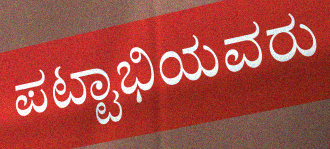
ಪಟ್ಟಾಭಿಯವರು